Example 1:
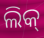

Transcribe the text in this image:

ଲିକ୍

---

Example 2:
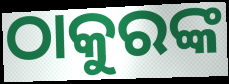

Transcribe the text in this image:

ଠାକୁରଙ୍କ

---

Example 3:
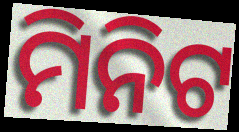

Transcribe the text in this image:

ମିନିଟ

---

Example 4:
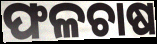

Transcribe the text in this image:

ଫଳଚାଷ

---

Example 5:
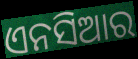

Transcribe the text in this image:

ଏନସିଆର